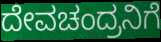
ದೇವಚಂದ್ರನಿಗೆ